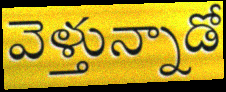
వెళ్తున్నాడో